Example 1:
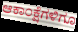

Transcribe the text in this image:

ಆಕಾಂಕ್ಷೆಗಳಿಗೂ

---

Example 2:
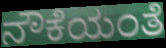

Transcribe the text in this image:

ನೌಕೆಯಂತೆ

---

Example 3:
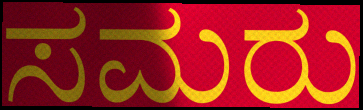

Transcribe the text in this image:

ಸಮರು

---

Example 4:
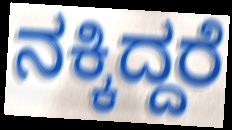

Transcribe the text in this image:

ನಕ್ಕಿದ್ದರೆ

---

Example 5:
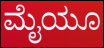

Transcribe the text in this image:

ಮೈಯೂ